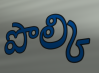
పొల్కి